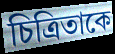
চিত্রিতাকে